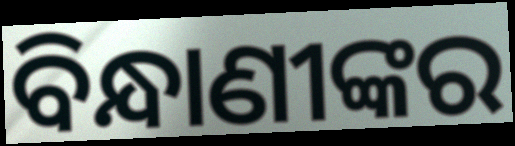
ବିନ୍ଧାଣୀଙ୍କର